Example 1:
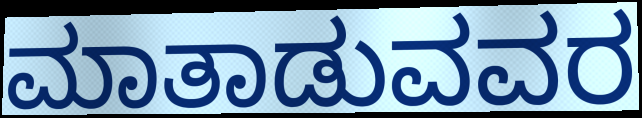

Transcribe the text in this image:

ಮಾತಾಡುವವರ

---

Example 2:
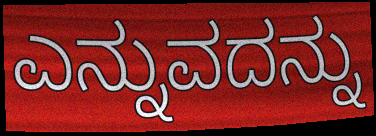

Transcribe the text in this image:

ಎನ್ನುವದನ್ನು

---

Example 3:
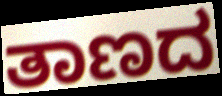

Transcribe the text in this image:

ತಾಣದ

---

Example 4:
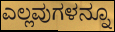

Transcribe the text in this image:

ಎಲ್ಲವುಗಳನ್ನೂ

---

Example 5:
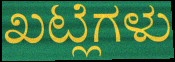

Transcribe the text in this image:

ಖಟ್ಲೆಗಳು